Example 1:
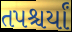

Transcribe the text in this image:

તપશ્ચર્યાં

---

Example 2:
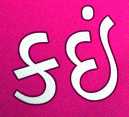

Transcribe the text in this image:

કઇં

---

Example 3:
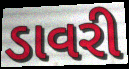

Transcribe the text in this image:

ડાવરી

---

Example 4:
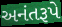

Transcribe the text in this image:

અનંતરૂપે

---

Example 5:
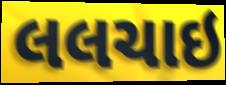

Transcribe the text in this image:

લલચાઇ